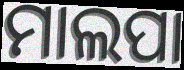
ମାଲପା